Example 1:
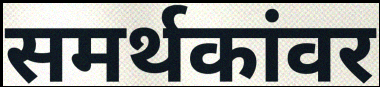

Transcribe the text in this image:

समर्थकांवर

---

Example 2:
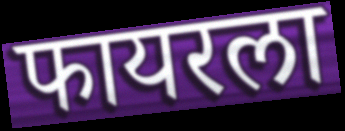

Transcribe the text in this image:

फायरला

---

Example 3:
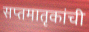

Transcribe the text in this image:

सप्तमातृकांची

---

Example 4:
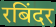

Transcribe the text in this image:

रबिंदर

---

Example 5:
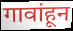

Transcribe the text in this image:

गावांहून